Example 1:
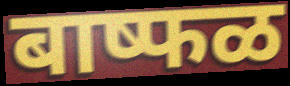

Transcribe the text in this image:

बाष्फळ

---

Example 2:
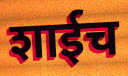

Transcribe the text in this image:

शाईच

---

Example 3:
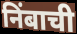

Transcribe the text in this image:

निंबाची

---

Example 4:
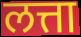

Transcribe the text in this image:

लत्ता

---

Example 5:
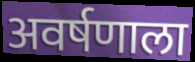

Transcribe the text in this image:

अवर्षणाला